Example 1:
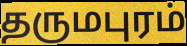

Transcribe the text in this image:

தருமபுரம்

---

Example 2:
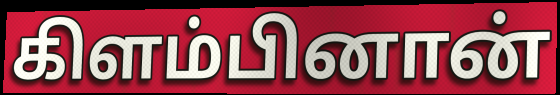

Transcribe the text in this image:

கிளம்பினான்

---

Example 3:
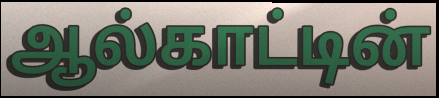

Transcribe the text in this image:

ஆல்காட்டின்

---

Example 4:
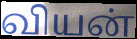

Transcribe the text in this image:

வியன்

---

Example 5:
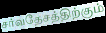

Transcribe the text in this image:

சர்வதேசத்திற்கும்